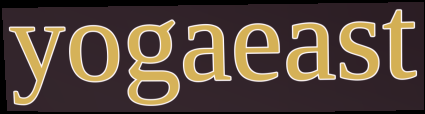
yogaeast